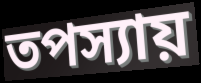
তপস্যায়